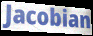
Jacobian